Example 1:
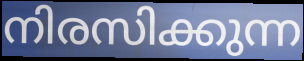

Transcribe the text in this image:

നിരസിക്കുന്ന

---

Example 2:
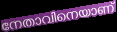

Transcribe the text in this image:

നേതാവിനെയാണ്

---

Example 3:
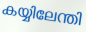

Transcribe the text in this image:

കയ്യിലേന്തി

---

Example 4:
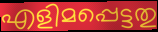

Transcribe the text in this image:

എളിമപ്പെട്ടതു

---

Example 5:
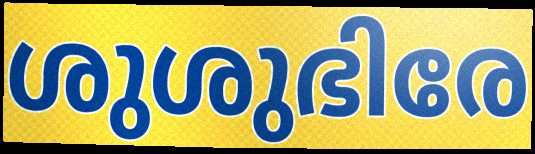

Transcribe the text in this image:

ശുശുഭിരേ